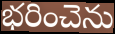
భరించెను